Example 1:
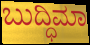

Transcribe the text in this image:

ಬುದ್ಧಿಮಾ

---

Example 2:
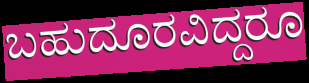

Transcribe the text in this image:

ಬಹುದೂರವಿದ್ದರೂ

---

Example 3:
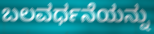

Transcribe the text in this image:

ಬಲವರ್ಧನೆಯನ್ನು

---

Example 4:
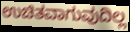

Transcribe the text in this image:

ಉಚಿತವಾಗುವುದಿಲ್ಲ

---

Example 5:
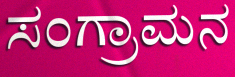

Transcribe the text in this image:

ಸಂಗ್ರಾಮನ